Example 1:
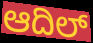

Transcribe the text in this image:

ಆದಿಲ್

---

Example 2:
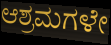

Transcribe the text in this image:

ಆಶ್ರಮಗಳೇ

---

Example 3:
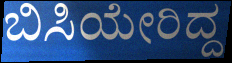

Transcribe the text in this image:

ಬಿಸಿಯೇರಿದ್ದ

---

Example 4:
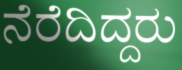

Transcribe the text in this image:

ನೆರೆದಿದ್ದರು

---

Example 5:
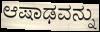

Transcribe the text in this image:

ಆಷಾಢವನ್ನು